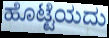
ಹೊಟ್ಟೆಯದು